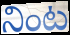
నింట